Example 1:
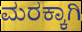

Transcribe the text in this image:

ಮರಕ್ಕಾಗಿ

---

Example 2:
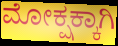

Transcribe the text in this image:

ಮೋಕ್ಷಕ್ಕಾಗಿ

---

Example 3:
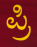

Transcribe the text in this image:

ಪ್ರಿ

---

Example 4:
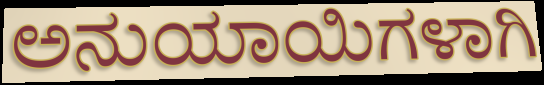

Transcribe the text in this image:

ಅನುಯಾಯಿಗಳಾಗಿ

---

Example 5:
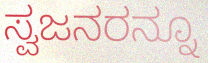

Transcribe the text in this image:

ಸ್ವಜನರನ್ನೂ